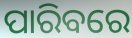
ପାରିବରେ